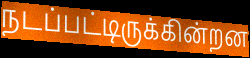
நடப்பட்டிருக்கின்றன